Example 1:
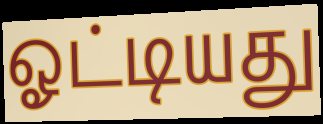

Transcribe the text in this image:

ஓட்டியது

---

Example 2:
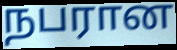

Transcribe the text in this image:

நபரான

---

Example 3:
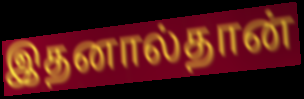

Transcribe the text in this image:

இதனால்தான்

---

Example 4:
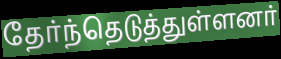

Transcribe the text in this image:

தேர்ந்தெடுத்துள்ளனர்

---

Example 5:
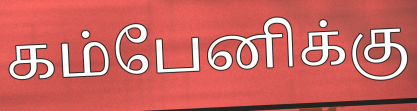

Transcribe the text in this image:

கம்பேனிக்கு